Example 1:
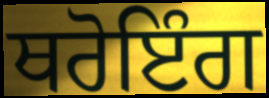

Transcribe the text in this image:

ਥਰੋਇੰਗ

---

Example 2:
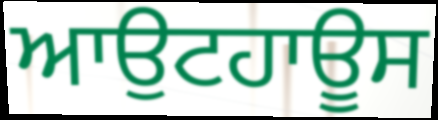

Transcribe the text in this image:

ਆਉਟਹਾਊਸ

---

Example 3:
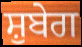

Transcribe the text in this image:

ਸ਼ੁਬੇਗ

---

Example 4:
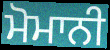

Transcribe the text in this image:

ਮੋਮਾਨੀ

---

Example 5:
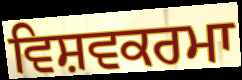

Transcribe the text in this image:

ਵਿਸ਼ਵਕਰਮਾ